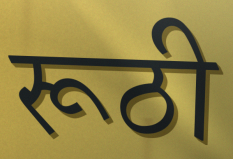
रूठी